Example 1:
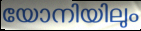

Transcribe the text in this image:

യോനിയിലും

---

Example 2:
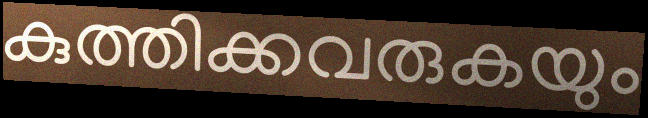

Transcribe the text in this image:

കുത്തിക്കവരുകയും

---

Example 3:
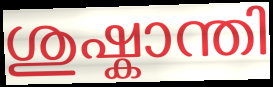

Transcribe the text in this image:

ശുഷ്കാന്തി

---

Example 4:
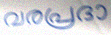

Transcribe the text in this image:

വരപ്രദാ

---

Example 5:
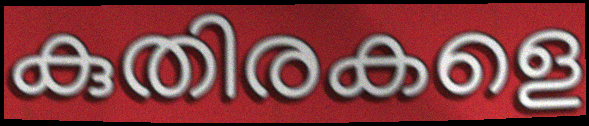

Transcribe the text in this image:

കുതിരകളെ